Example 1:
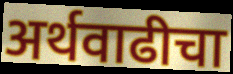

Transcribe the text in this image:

अर्थवाढीचा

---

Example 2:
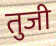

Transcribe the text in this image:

तुजी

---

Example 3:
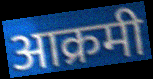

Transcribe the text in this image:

आक्रमी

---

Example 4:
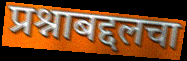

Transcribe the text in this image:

प्रश्नाबद्दलचा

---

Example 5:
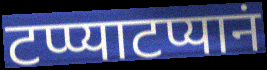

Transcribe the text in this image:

टप्प्याटप्यानं